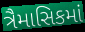
ત્રૈમાસિકમાં